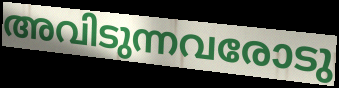
അവിടുന്നവരോടു